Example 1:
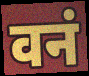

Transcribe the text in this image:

वनं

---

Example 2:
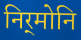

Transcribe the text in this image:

निर्मोनि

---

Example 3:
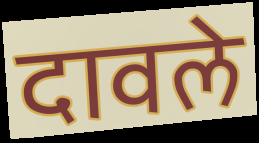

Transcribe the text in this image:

दावले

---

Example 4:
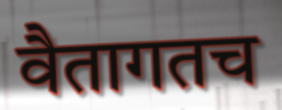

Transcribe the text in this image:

वैतागतच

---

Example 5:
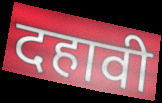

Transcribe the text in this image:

दहावी